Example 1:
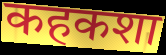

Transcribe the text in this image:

कहकशा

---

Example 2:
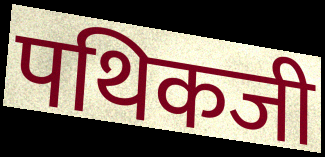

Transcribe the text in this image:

पथिकजी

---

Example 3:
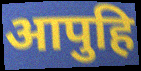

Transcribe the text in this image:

आपुहि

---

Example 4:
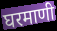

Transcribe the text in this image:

घरमाणी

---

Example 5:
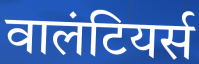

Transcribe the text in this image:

वालंटियर्स